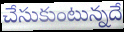
చేసుకుంటున్నదే